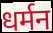
धर्मन